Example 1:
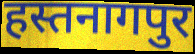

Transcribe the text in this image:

हस्तनागपुर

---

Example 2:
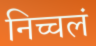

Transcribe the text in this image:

निच्चलं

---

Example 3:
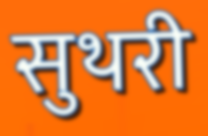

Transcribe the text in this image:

सुथरी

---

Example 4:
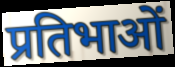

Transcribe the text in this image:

प्रतिभाओं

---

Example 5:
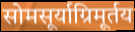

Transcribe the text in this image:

सोमसूर्याग्रिमूर्तय